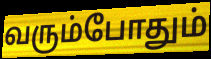
வரும்போதும்